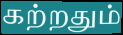
கற்றதும்